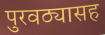
पुरवठ्यासह